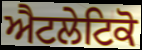
ਐਟਲੇਟਿਕੋ